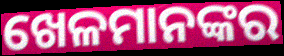
ଖେଳମାନଙ୍କର